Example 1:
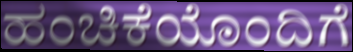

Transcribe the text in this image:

ಹಂಚಿಕೆಯೊಂದಿಗೆ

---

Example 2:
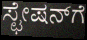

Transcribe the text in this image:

ಸ್ಟೇಷನ್‌ಗೆ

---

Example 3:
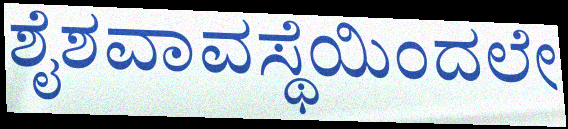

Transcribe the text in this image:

ಶೈಶವಾವಸ್ಥೆಯಿಂದಲೇ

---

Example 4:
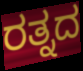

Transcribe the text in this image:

ರತ್ನದ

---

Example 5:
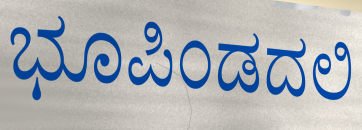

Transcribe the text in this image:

ಭೂಪಿಂಡದಲಿ